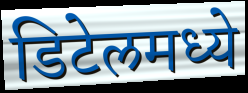
डिटेलमध्ये